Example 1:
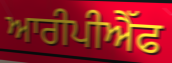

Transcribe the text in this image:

ਆਰੀਪੀਐੱਫ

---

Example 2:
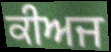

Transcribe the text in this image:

ਕੀਅਜ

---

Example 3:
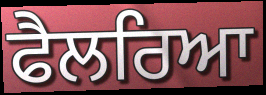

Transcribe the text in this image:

ਫੈਲਰਿਆ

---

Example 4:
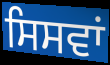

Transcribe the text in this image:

ਸਿਸਵਾਂ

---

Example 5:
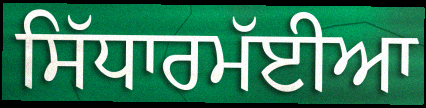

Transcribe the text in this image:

ਸਿੱਧਾਰਮੱਈਆ